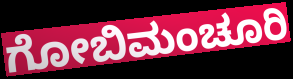
ಗೋಬಿಮಂಚೂರಿ